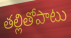
తల్లితోపాటు